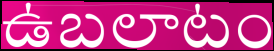
ఉబలాటం